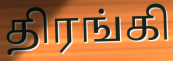
திரங்கி